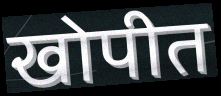
खोपीत